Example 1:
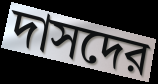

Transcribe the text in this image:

দাসদের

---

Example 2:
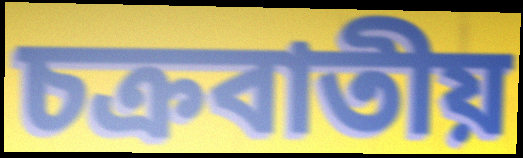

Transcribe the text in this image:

চক্রবাতীয়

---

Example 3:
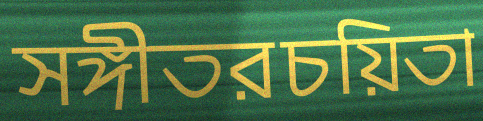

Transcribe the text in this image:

সঙ্গীতরচয়িতা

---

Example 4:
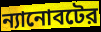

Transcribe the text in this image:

ন্যানোবটের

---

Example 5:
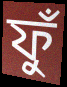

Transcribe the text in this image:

ফুঁ